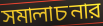
সমালাচনার